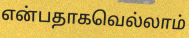
என்பதாகவெல்லாம்